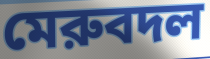
মেরুবদল